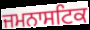
ਜਮਨਾਸਟਿਕ